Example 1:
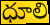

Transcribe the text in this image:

ధూలి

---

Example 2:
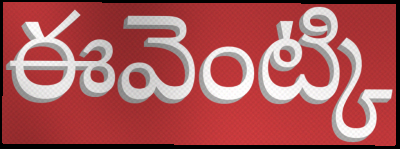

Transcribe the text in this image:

ఈవెంట్కి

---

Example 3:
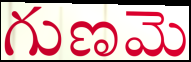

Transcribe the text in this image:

గుణమె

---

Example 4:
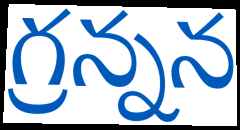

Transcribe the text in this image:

గ్రన్నన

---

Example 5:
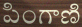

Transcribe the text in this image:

పింగాణి